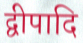
द्वीपादि